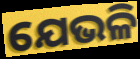
ଯେଭଳି